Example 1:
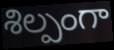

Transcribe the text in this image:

శిల్పంగా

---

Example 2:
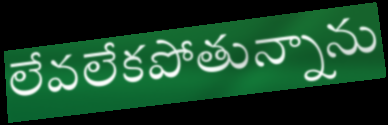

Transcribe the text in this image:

లేవలేకపోతున్నాను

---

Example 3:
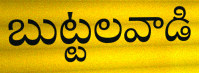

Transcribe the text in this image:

బుట్టలవాడి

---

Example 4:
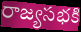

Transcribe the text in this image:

రాజ్యసభకి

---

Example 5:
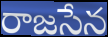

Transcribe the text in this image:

రాజసేన